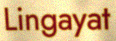
Lingayat